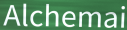
Alchemai